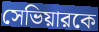
সেভিয়ারকে